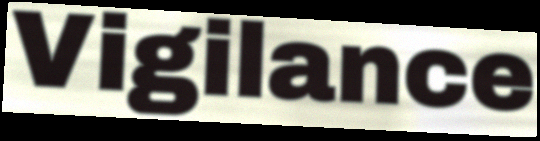
Vigilance